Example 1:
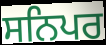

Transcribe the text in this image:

ਸਨਿਪਰ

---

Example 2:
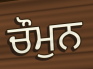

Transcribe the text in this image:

ਚੌਮੁਨ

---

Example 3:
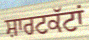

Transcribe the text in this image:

ਸ਼ਾਰਟਕੱਟਾਂ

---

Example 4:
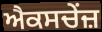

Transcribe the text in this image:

ਐਕਸਚੇਂਜ਼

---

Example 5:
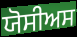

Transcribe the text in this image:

ਯੋਸੀਅਸ